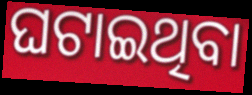
ଘଟାଇଥିବା